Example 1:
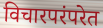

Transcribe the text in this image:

विचारपरंपरेत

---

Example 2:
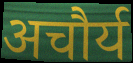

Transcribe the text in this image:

अचौर्य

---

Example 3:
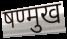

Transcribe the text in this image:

षण्मुख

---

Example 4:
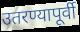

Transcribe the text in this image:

उतरण्यापूर्वी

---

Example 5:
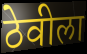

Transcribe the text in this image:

ठेवीला